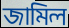
জামিল